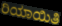
ರಿಯಾಯಿತಿ